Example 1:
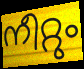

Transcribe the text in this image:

നീറ്റും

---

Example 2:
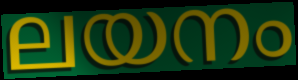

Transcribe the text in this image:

ലയനം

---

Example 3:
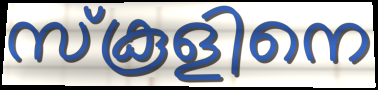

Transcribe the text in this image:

സ്കൂളിനെ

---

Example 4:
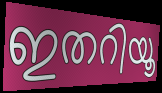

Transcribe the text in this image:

ഇതറിയൂ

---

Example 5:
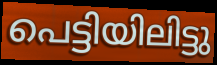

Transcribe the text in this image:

പെട്ടിയിലിട്ടു